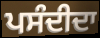
ਪਸੰਦੀਦਾ